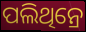
ପଲିଥିନ୍ରେ